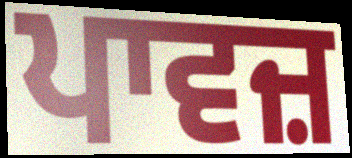
ਪਾਵਜ਼